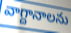
వాగ్దానాలను